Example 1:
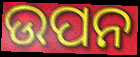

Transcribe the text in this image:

ଉପନ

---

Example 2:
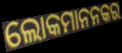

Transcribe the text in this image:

ଲୋକମାନନକର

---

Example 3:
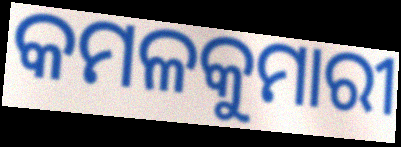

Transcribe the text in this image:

କମଳକୁମାରୀ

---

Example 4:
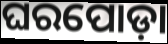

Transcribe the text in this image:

ଘରପୋଡ଼ା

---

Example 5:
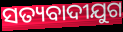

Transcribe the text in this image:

ସତ୍ୟବାଦୀଯୁଗ